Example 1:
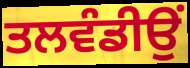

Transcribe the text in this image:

ਤਲਵੰਡੀਉਂ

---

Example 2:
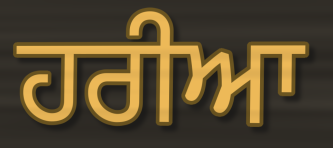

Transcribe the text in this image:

ਹਰੀਆ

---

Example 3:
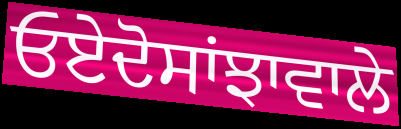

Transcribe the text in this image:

ਓਏਦੋਸਾਂਝਾਵਾਲੇ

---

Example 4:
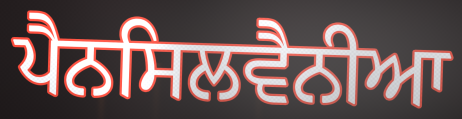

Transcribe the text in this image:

ਪੈਨਸਿਲਵੈਨੀਆ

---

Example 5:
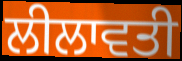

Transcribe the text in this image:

ਲੀਲਾਵਤੀ